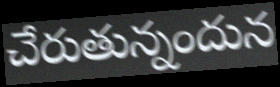
చేరుతున్నందున